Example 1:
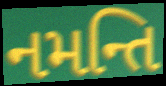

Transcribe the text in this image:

નમન્તિ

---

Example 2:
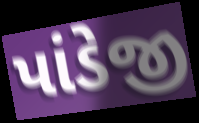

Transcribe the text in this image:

પાંડેજી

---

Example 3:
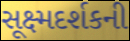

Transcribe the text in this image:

સૂક્ષ્મદર્શકની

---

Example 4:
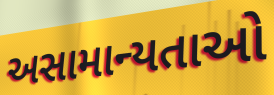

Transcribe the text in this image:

અસામાન્યતાઓ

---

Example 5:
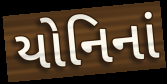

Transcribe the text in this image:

યોનિનાં